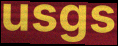
usgs